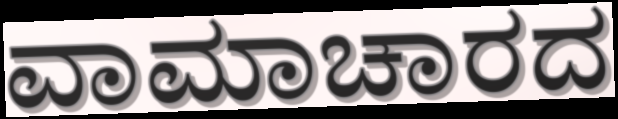
ವಾಮಾಚಾರದ